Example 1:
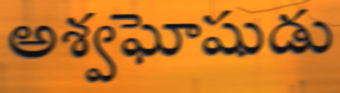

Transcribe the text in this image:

అశ్వఘోషుడు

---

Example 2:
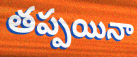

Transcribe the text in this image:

తప్పయినా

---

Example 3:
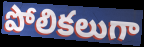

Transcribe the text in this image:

పోలికలుగా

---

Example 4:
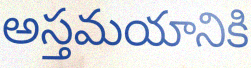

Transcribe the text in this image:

అస్తమయానికి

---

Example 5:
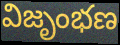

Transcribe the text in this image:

విజృంభణ